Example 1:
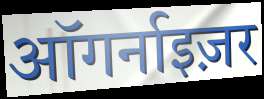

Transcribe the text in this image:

ऑगर्नाइज़र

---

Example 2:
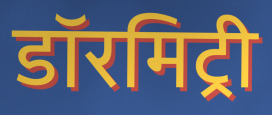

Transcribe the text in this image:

डॉरमिट्री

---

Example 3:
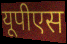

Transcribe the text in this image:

यूपीएस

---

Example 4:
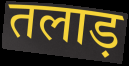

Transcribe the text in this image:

तलाड़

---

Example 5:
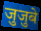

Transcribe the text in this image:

जुजुबे